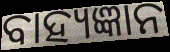
ବାହ୍ୟଜ୍ଞାନ